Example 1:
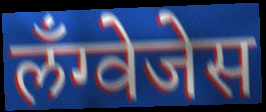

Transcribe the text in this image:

लँग्वेजेस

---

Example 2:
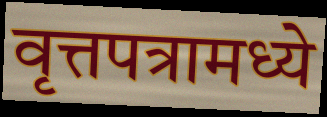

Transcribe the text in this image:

वृत्तपत्रामध्ये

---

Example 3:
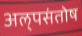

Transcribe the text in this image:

अल्पसंतोष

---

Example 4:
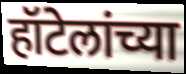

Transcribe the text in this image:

हॉटेलांच्या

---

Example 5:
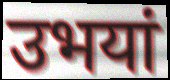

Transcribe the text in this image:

उभयां